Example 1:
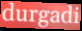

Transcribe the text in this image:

durgadi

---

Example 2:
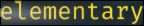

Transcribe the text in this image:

elementary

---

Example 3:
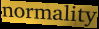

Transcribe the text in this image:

normality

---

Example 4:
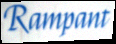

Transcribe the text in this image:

Rampant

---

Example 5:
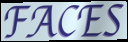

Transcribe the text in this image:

FACES